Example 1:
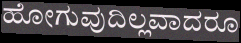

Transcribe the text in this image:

ಹೋಗುವುದಿಲ್ಲವಾದರೂ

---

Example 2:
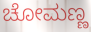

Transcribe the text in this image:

ಚೋಮಣ್ಣ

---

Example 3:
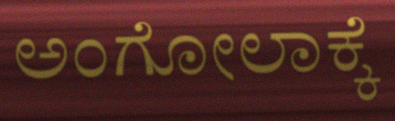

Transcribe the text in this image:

ಅಂಗೋಲಾಕ್ಕೆ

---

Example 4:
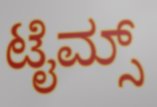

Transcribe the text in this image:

ಟೈಮ್ಸ್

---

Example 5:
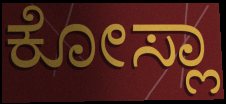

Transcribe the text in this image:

ಕೋಸ್ಲಾ